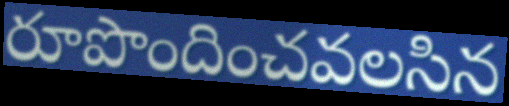
రూపొందించవలసిన